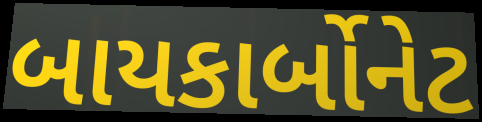
બાયકાર્બોનેટ